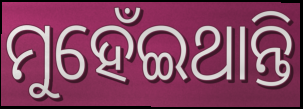
ମୁହେଁଇଥାନ୍ତି